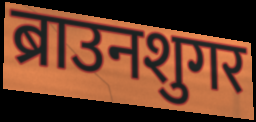
ब्राउनशुगर